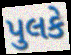
પુલકે